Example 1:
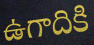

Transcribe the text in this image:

ఉగాదికి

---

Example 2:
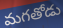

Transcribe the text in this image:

మగతోడు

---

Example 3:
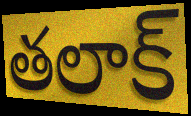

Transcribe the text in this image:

తలాక్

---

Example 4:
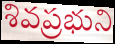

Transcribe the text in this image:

శివప్రభుని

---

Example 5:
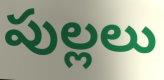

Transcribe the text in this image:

పుల్లలు